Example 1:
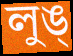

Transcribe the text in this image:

লুঙ্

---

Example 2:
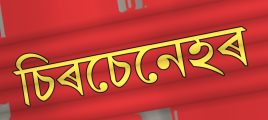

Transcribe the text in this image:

চিৰচেনেহৰ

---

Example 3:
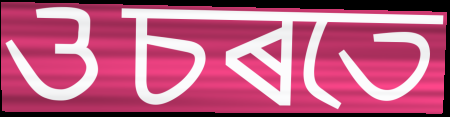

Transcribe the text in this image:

ওচৰতে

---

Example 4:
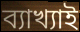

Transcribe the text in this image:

ব্যাখ্যাই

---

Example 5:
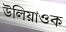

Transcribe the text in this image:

উলিয়াওক